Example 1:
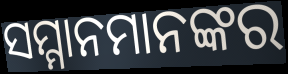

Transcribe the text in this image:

ସମ୍ମାନମାନଙ୍କର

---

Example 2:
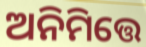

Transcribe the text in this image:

ଅନିମିତ୍ତେ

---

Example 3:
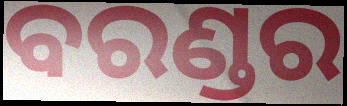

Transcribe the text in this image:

ବରଣ୍ଡର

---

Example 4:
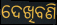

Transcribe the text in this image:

ଦେଖିବଣି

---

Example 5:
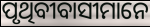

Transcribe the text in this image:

ପୃଥିବୀବାସୀମାନେ